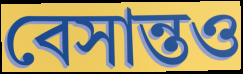
বেসান্তও